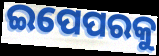
ଇପେପରକୁ